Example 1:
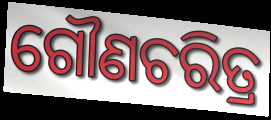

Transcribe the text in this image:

ଗୌଣଚରିତ୍ର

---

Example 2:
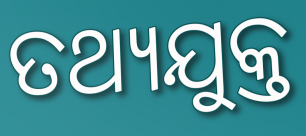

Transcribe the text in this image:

ତଥ୍ୟଯୁକ୍ତ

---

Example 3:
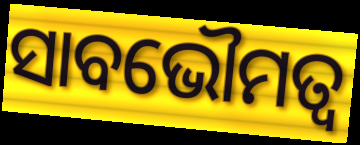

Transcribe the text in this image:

ସାବଭୌମତ୍ୱ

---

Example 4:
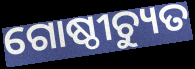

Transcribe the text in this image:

ଗୋଷ୍ଠୀଚ୍ୟୁତ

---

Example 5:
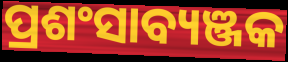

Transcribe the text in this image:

ପ୍ରଶଂସାବ୍ୟଞ୍ଜକ